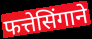
फत्तेसिंगाने